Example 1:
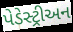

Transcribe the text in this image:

પેડેસ્ટ્રીઅન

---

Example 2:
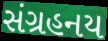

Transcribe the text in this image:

સંગ્રહનય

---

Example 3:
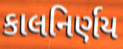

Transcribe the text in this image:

કાલનિર્ણય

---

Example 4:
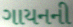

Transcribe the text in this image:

ગાયનની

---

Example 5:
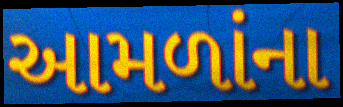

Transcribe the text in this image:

આમળાંના